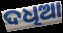
ଦଧିଆ